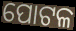
ପୋଟଳ